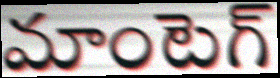
మాంటెగ్